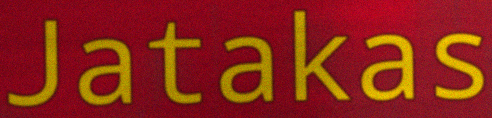
Jatakas